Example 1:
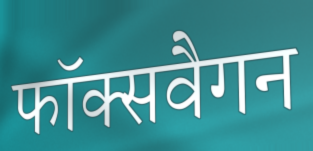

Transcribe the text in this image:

फॉक्सवैगन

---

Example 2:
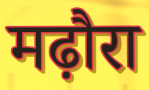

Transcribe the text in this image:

मढ़ौरा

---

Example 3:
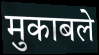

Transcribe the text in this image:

मुकाबले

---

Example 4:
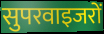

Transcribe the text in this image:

सुपरवाइजरों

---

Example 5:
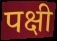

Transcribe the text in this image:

पक्षी